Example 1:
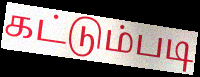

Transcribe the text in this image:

கட்டும்படி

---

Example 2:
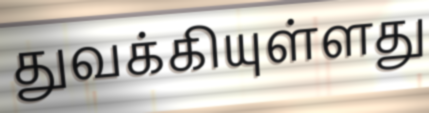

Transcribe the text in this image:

துவக்கியுள்ளது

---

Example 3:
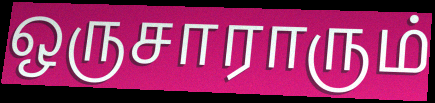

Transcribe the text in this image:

ஒருசாராரும்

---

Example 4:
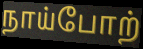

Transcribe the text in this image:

நாய்போற்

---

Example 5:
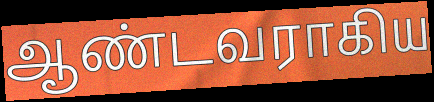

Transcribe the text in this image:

ஆண்டவராகிய